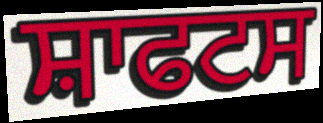
ਸ਼ਾਫਟਸ